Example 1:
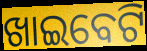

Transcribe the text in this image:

ଖାଇବେଟି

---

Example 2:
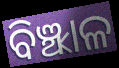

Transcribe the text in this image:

ବିଞ୍ଝାଳ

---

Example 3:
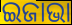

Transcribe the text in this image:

ଇଜାଭା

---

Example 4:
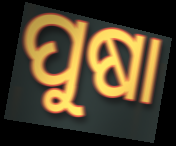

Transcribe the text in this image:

ପୁଷା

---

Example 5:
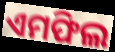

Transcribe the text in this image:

ଏମଫିଲ